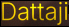
Dattaji